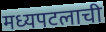
मध्यपटलाची